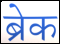
ब्रेक